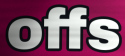
offs